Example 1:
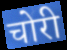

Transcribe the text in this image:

चोरी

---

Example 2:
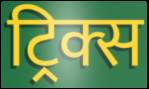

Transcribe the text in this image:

ट्रिक्‍स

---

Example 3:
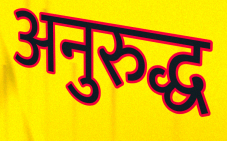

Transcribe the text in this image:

अनुरुद्ध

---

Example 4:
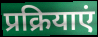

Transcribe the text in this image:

प्रक्रियाएं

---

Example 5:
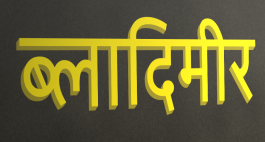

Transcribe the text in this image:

ब्लादिमीर